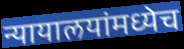
न्यायालयांमध्येच